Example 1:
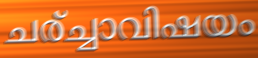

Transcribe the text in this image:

ചര്ച്ചാവിഷയം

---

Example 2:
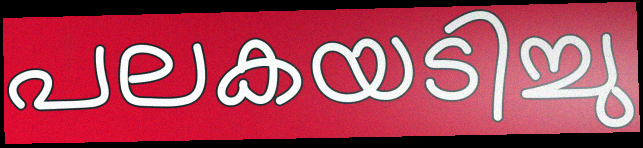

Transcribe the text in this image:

പലകയടിച്ചു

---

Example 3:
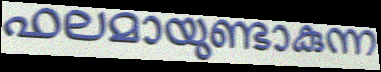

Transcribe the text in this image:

ഫലമായുണ്ടാകുന്ന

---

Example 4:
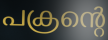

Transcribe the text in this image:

പക്രന്റെ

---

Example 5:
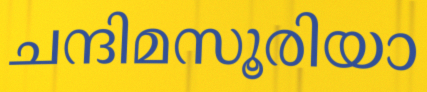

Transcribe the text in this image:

ചന്ദിമസൂരിയാ